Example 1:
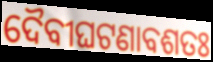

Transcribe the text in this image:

ଦୈବୀଘଟଣାବଶତଃ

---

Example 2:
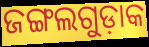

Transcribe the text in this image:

ଜଙ୍ଗଲଗୁଡ଼ାକ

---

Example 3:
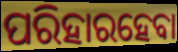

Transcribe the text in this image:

ପରିହାରହେବା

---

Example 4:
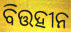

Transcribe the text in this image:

ବିତ୍ତହୀନ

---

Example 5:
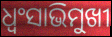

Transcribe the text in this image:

ଧ୍ଵଂସାଭିମୁଖୀ